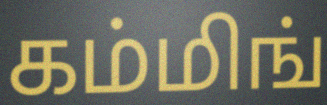
கம்மிங்